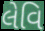
લેવિ